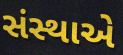
સંસ્થાએ